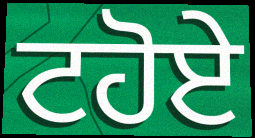
ਟਹੋਏ